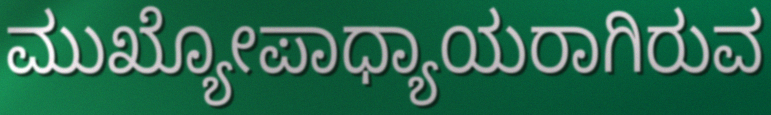
ಮುಖ್ಯೋಪಾಧ್ಯಾಯರಾಗಿರುವ